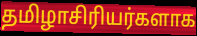
தமிழாசிரியர்களாக